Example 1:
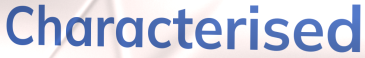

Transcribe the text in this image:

Characterised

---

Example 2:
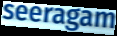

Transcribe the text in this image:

seeragam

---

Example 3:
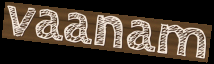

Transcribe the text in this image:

vaanam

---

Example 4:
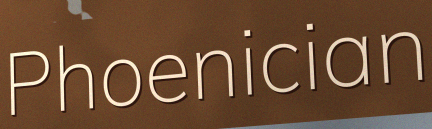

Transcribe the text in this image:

Phoenician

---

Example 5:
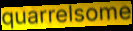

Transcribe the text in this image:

quarrelsome